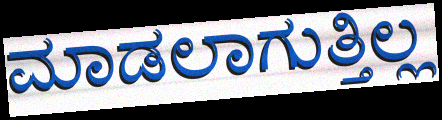
ಮಾಡಲಾಗುತ್ತಿಲ್ಲ